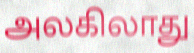
அலகிலாது